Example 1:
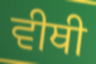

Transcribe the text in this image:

ਵੀਥੀ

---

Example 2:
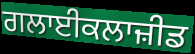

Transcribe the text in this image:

ਗਲਾਈਕਲਾਜ਼ੀਡ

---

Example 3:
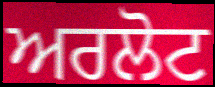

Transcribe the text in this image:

ਅਰਲੋਟ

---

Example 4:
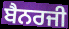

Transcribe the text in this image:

ਬੈਨਰਜੀ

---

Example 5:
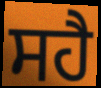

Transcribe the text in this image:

ਸਹੈ